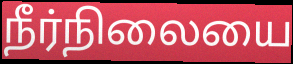
நீர்நிலையை